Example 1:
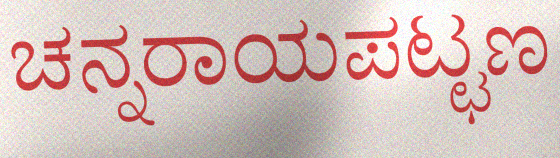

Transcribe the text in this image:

ಚನ್ನರಾಯಪಟ್ಟಣ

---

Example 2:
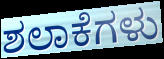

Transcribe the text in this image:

ಶಲಾಕೆಗಳು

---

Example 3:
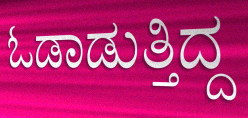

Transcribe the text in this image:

ಓಡಾಡುತ್ತಿದ್ದ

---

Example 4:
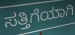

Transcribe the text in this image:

ಸತ್ತಿಗೆಯಾಗಿ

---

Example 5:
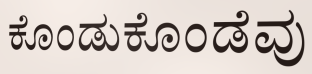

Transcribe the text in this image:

ಕೊಂಡುಕೊಂಡೆವು